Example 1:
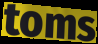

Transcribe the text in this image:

toms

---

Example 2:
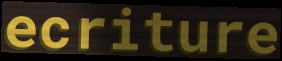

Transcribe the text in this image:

ecriture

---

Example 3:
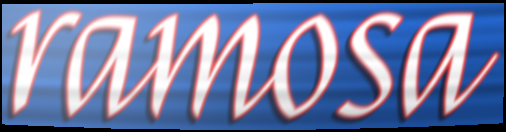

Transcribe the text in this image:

ramosa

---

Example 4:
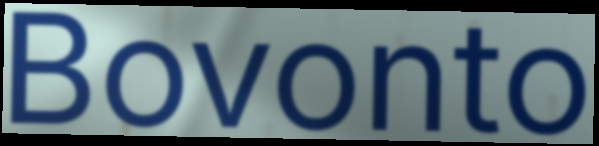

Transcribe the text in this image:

Bovonto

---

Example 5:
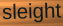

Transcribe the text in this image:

sleight